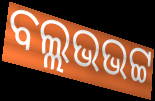
ବଲ୍ଲଭଭଟ୍ଟ